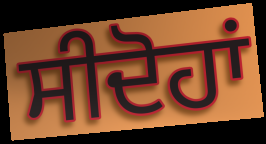
ਸੀਦੋਹਾਂ